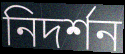
নিদর্শন